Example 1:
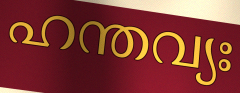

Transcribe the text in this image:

ഹന്തവ്യഃ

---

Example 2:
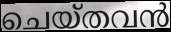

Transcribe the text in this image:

ചെയ്തവൻ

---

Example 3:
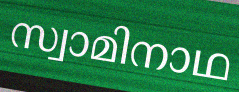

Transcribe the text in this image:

സ്വാമിനാഥ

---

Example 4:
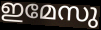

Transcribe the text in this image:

ഇമേസു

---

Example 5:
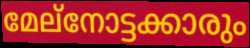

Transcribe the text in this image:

മേല്നോട്ടക്കാരും